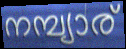
നമ്പ്യാര്